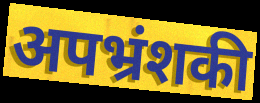
अपभ्रंशकी